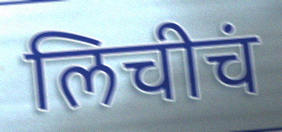
लिचीचं